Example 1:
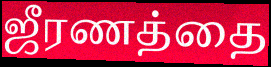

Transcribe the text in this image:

ஜீரணத்தை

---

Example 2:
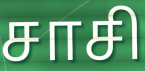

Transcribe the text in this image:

சாசி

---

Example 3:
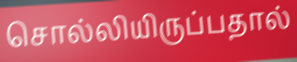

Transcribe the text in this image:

சொல்லியிருப்பதால்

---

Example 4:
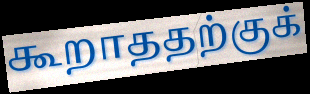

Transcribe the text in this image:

கூறாததற்குக்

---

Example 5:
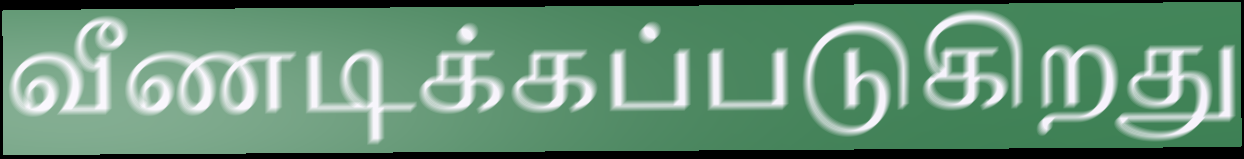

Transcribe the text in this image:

வீணடிக்கப்படுகிறது